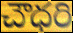
చౌధరి